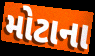
મોટાના